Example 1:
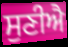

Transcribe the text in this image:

ਸੁਣੀਐ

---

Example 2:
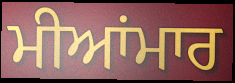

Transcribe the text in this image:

ਮੀਆਂਮਾਰ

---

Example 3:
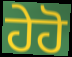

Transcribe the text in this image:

ਹੇਹੋ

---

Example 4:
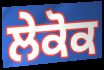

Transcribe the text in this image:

ਲੇਕੋਕ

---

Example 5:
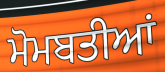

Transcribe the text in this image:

ਮੋਮਬਤੀਆਂ